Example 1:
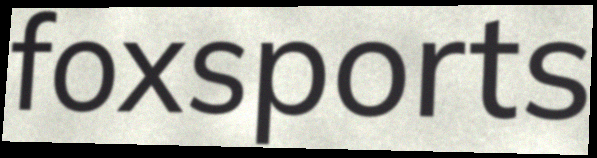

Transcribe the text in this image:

foxsports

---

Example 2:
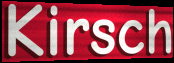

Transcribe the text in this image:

Kirsch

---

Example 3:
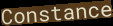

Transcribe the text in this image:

Constance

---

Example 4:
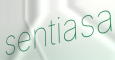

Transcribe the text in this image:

sentiasa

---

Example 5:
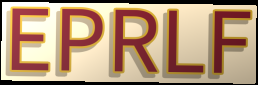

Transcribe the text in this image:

EPRLF